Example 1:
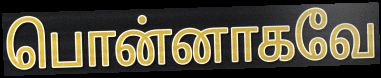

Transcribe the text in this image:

பொன்னாகவே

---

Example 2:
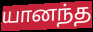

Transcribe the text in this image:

யானந்த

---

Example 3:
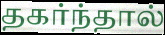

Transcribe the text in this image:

தகர்ந்தால்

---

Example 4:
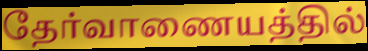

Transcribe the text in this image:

தேர்வாணையத்தில்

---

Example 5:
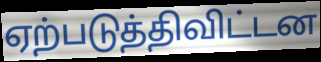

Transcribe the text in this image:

ஏற்படுத்திவிட்டன